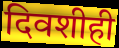
दिवशीही